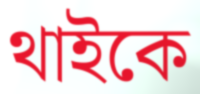
থাইকে